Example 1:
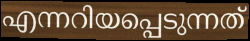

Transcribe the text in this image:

എന്നറിയപ്പെടുന്നത്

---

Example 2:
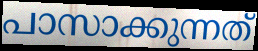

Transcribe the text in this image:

പാസാക്കുന്നത്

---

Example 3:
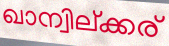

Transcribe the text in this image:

ഖാന്വില്ക്കര്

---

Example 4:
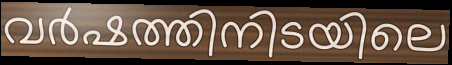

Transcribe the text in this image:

വർഷത്തിനിടയിലെ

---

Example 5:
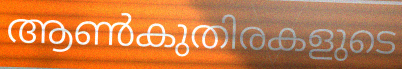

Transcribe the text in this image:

ആൺകുതിരകളുടെ